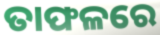
ତାଫଳରେ